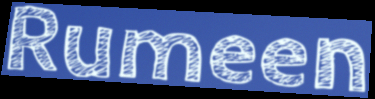
Rumeen